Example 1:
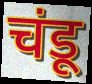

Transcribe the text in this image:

चंडू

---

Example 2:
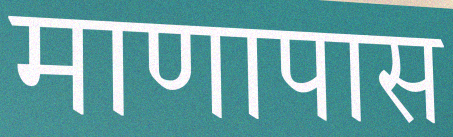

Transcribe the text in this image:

माणापास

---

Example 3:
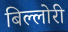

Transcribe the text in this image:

बिल्लोरी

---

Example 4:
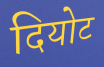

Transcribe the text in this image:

दियोट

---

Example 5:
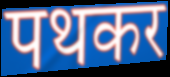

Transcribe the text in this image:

पथकर